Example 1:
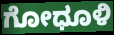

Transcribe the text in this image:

ಗೋಧೂಳಿ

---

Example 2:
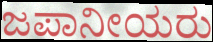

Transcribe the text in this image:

ಜಪಾನೀಯರು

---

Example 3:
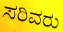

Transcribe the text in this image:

ಸರಿವರು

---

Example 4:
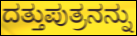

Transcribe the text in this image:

ದತ್ತುಪುತ್ರನನ್ನು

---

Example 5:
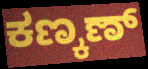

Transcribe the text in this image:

ಕಣ್ಕಣ್